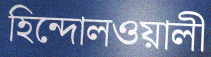
হিন্দোলওয়ালী